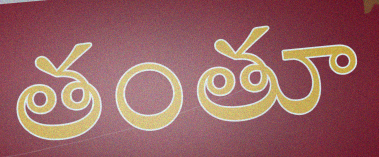
తంతూ